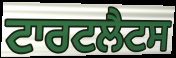
ਟਾਰਟਲੈਟਸ